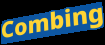
Combing